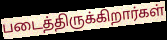
படைத்திருக்கிறார்கள்